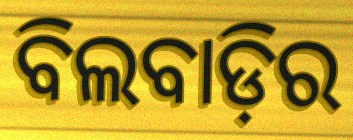
ବିଲବାଡ଼ିର